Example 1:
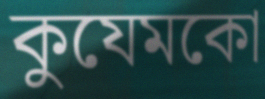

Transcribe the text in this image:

কুযেমকো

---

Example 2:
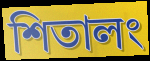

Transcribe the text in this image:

শিতালং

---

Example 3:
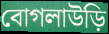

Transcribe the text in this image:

বোগলাউড়ি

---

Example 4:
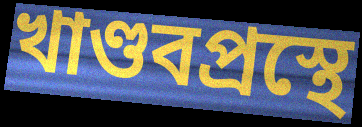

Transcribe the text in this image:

খাণ্ডবপ্রস্থে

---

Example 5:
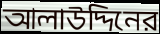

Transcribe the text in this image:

আলাউদ্দিনের